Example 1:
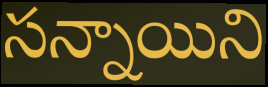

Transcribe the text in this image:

సన్నాయిని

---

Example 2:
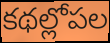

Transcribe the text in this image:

కథల్లోపల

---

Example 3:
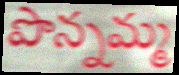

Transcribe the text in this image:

పొన్నమ్మ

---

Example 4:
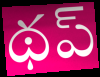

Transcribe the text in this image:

థప్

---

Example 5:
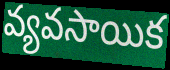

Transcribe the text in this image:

వ్యవసాయిక